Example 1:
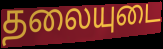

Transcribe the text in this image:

தலையுடை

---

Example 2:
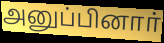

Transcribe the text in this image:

அனுப்பினார்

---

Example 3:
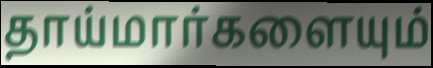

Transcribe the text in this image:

தாய்மார்களையும்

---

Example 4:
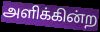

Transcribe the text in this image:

அளிக்கின்ற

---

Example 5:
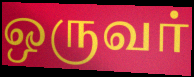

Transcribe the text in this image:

ஒருவர்